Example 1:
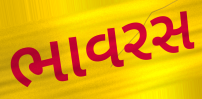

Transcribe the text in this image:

ભાવરસ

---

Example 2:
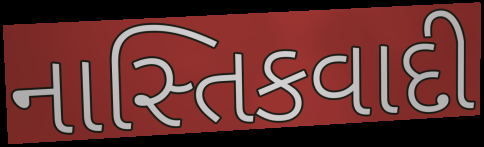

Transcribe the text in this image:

નાસ્તિકવાદી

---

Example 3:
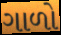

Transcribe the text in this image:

ગાળો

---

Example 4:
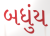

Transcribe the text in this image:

બધુંય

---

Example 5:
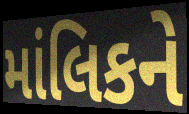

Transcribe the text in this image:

માંલિકને